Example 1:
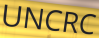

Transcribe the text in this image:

UNCRC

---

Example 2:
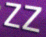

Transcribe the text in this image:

zz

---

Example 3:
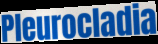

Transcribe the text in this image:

Pleurocladia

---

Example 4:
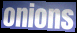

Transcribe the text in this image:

onions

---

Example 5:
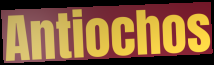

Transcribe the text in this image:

Antiochos